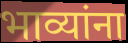
भाव्यांना